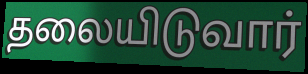
தலையிடுவார்